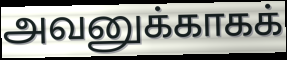
அவனுக்காகக்